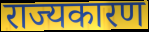
राज्यकारण